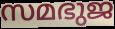
സമഭുജ